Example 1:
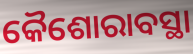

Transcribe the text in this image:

କୈଶୋରାବସ୍ଥା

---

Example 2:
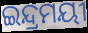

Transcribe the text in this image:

ଇନ୍ଦ୍ରମୟୀ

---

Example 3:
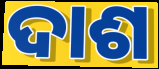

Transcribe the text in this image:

ଦାଶ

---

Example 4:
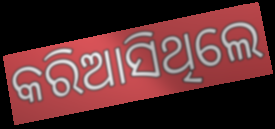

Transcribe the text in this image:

କରିଆସିଥିଲେ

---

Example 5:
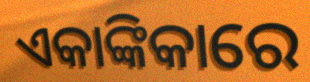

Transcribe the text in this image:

ଏକାଙ୍କିକାରେ